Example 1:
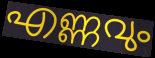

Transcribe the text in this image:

എണ്ണവും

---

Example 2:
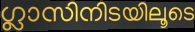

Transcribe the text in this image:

ഗ്ലാസിനിടയിലൂടെ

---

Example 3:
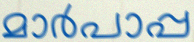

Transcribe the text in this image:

മാർപാപ്പ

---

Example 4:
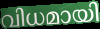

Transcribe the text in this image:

വിധമായി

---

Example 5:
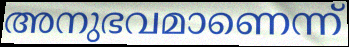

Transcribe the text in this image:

അനുഭവമാണെന്ന്